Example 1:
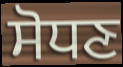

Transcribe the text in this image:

ਸੋਧਣ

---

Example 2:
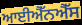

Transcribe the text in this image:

ਆਈਐੱਨਐੱਸ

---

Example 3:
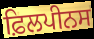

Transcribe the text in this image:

ਫ਼ਿਲਪੀਨਸ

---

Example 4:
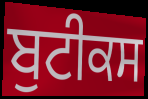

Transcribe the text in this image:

ਬੁਟੀਕਸ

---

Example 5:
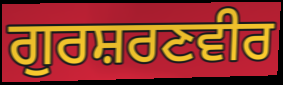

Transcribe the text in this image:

ਗੁਰਸ਼ਰਣਵੀਰ